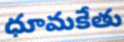
ధూమకేతు